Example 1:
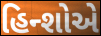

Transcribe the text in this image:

હિન્શોએ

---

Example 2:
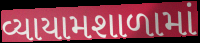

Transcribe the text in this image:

વ્યાયામશાળામાં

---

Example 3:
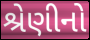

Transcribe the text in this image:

શ્રેણીનો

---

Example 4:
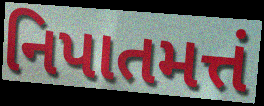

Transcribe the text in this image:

નિપાતમત્તં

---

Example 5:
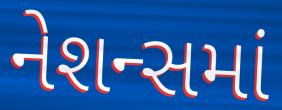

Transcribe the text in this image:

નેશન્સમાં